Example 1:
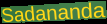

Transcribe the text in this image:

Sadananda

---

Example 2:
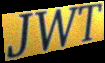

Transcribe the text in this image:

JWT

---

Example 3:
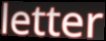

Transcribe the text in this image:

letter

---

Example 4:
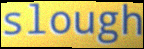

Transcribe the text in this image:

slough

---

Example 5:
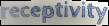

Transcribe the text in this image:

receptivity